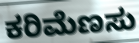
ಕರಿಮೆಣಸು